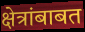
क्षेत्रांबाबत